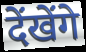
देंखेंगे